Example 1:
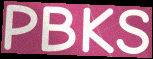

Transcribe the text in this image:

PBKS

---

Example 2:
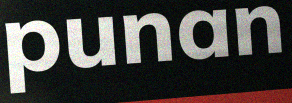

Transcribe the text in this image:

punan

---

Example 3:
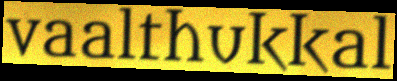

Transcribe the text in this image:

vaalthukkal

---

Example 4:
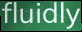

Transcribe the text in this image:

fluidly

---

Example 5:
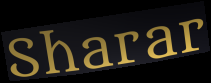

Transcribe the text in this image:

Sharar